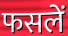
फसलें